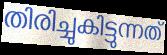
തിരിച്ചുകിട്ടുന്നത്